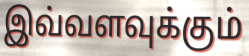
இவ்வளவுக்கும்